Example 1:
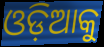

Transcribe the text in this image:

ଓଡ଼ିଆକୁ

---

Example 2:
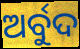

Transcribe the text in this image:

ଅର୍ବୁଦ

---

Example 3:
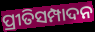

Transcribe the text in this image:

ପ୍ରୀତିସମ୍ପାଦନ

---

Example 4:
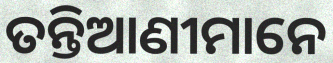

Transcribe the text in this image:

ତନ୍ତିଆଣୀମାନେ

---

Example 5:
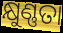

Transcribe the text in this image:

କ୍ଷୁଣ୍ଣତା